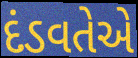
દંડવતેએ